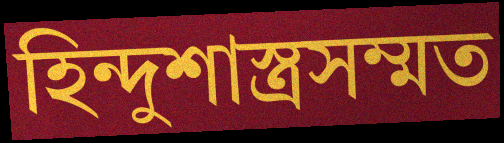
হিন্দুশাস্ত্রসম্মত